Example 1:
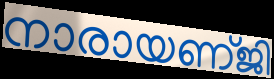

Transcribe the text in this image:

നാരായണ്ജി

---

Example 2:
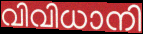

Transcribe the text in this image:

വിവിധാനി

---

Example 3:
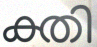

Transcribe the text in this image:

ക്തി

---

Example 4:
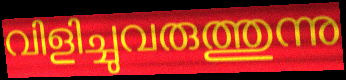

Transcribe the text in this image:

വിളിച്ചുവരുത്തുന്നു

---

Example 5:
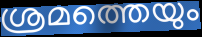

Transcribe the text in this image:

ശ്രമത്തെയും